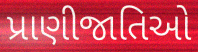
પ્રાણીજાતિઓ